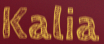
Kalia